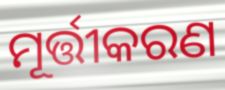
ମୂର୍ତ୍ତୀକରଣ